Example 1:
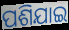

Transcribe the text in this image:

ପଶିଯାଇ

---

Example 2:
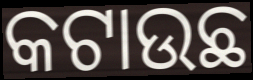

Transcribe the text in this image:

କଟାଉଛ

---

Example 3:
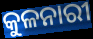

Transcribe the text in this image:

କୁଳନାରୀ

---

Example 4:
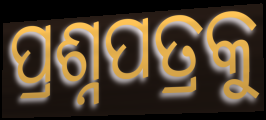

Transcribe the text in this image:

ପ୍ରଶ୍ନପତ୍ରକୁ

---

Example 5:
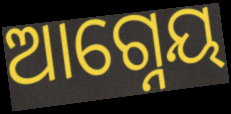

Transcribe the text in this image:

ଆଗ୍ନେୟ